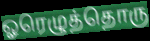
ஓரெழுத்தொரு